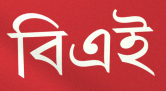
বিএই